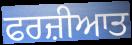
ਫਰਜ਼ੀਆਤ